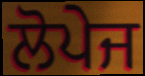
ਲੋਪੇਜ